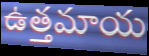
ఉత్తమాయ